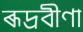
ৰূদ্ৰবীণা